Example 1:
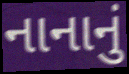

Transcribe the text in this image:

નાનાનું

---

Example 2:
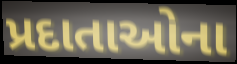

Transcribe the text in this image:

પ્રદાતાઓના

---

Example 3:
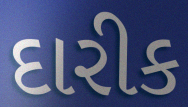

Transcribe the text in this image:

દારીક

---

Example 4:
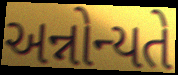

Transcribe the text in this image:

અન્નોન્યતે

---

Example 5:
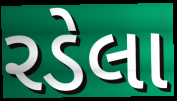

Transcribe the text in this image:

રડેલા